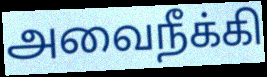
அவைநீக்கி